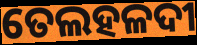
ତେଲହଳଦୀ